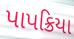
પાપક્રિયા